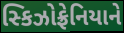
સ્કિઝોફ્રેનિયાને